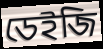
ডেইজি